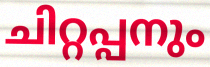
ചിറ്റപ്പനും